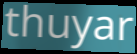
thuyar